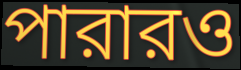
পারারও